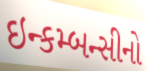
ઇન્કમ્બન્સીનો